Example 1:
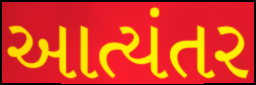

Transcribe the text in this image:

આત્યંતર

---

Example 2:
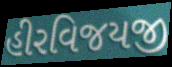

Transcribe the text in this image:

હીરવિજયજી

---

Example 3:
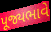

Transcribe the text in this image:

પૂજ્યભાવે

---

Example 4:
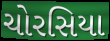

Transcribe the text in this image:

ચોરસિયા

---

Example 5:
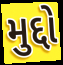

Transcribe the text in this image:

મુદ્દો